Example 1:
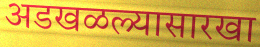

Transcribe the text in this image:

अडखळल्यासारखा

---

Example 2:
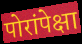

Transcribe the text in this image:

पोरांपेक्षा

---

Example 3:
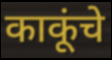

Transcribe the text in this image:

काकूंचे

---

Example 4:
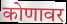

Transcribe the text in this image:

कोणावर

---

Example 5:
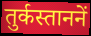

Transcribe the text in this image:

तुर्कस्ताननें